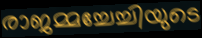
രാജമ്മച്ചേച്ചിയുടെ